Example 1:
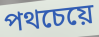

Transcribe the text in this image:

পথচেয়ে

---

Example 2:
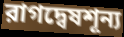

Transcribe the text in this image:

রাগদ্বেষশূন্য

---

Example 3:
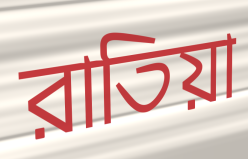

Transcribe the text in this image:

রাতিয়া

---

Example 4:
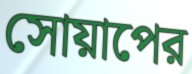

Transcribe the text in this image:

সোয়াপের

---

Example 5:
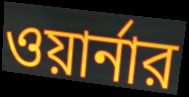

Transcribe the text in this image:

ওয়ার্নার